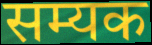
सम्यक